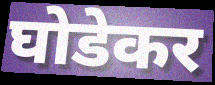
घोडेकर